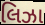
લિઝા